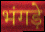
भंगड़े